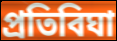
প্রতিবিঘা